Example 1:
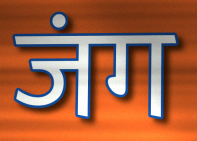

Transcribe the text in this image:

जंग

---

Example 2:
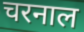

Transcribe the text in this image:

चरनाल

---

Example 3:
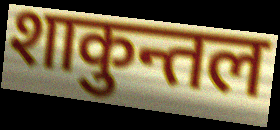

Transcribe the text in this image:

शाकुन्तल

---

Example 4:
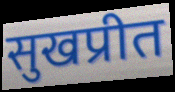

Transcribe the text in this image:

सुखप्रीत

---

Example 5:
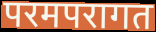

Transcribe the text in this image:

परमपरागत